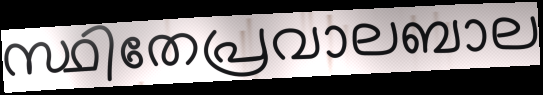
സ്ഥിതേപ്രവാലബാല